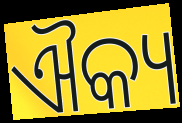
ଐକ୍ୟ